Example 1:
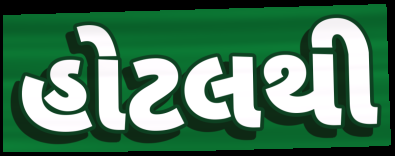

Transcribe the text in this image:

હોટલથી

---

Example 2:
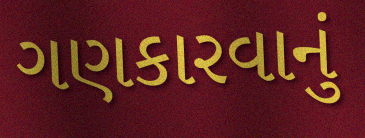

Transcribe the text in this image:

ગણકારવાનું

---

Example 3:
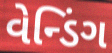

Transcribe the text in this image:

વેન્ડિંગ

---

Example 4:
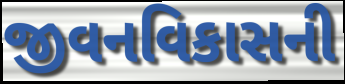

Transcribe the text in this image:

જીવનવિકાસની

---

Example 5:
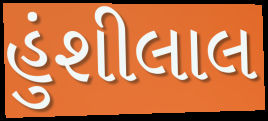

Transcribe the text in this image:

હુંશીલાલ